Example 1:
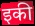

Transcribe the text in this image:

इकी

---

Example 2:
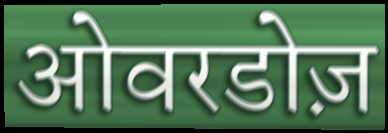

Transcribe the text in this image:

ओवरडोज़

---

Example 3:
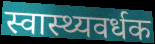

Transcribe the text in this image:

स्वास्थ्यवर्धक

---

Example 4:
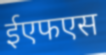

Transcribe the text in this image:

ईएफएस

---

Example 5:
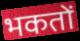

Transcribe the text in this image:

भकतों